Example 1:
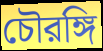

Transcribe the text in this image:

চৌরঙ্গি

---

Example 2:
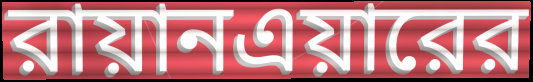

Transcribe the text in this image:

রায়ানএয়ারের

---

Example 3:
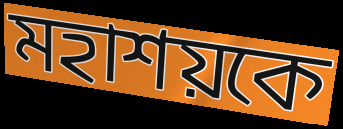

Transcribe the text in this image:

মহাশয়কে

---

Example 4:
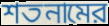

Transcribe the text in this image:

শতনামের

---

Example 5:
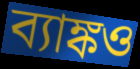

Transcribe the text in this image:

ব্যাঙ্কও